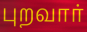
புறவார்